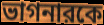
ভাগনারকে